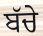
ਬੱਚੇ